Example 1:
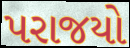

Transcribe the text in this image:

પરાજયો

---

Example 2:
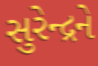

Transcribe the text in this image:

સુરેન્દ્રને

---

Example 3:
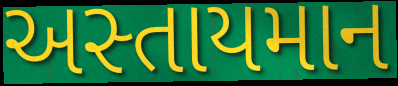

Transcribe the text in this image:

અસ્તાયમાન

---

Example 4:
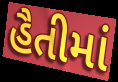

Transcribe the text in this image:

હૈતીમાં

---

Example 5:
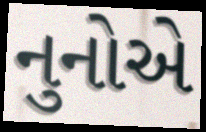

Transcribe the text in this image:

નુનોએ